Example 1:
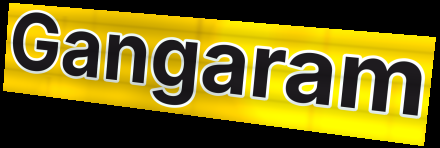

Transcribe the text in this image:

Gangaram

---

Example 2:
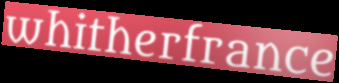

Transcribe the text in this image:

whitherfrance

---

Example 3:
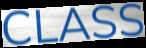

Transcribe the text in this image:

CLASS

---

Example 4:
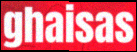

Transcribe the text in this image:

ghaisas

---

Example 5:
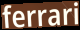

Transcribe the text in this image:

ferrari